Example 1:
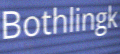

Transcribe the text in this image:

Bothlingk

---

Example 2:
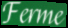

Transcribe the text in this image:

Ferme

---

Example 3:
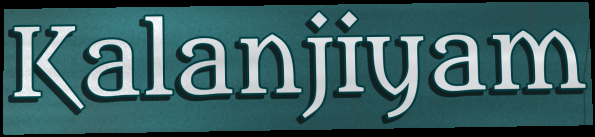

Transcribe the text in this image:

Kalanjiyam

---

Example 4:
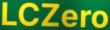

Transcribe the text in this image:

LCZero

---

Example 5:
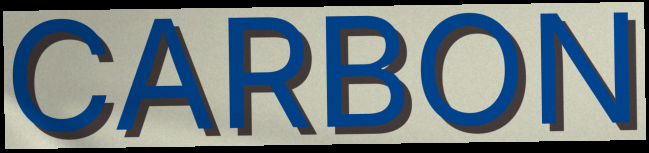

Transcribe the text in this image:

CARBON